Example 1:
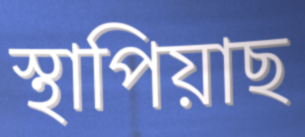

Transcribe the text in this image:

স্থাপিয়াছ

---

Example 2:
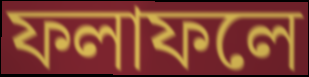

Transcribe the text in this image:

ফলাফলে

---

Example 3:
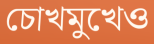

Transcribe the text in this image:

চোখমুখেও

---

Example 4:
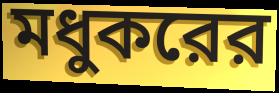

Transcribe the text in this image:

মধুকরের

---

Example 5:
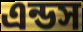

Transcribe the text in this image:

এন্ডস